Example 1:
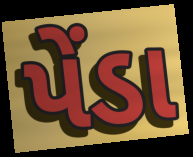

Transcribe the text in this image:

પેંડા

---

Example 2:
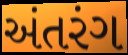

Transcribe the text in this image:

અંતરંગ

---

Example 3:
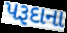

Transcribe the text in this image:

પરૂદાના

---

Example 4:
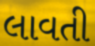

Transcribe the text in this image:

લાવતી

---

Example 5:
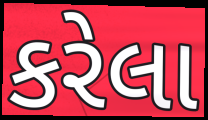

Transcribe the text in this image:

કરેલા